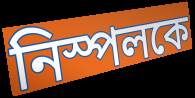
নিস্পলকে